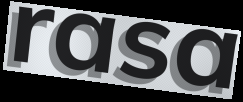
rasa